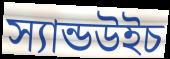
স্যান্ডউইচ